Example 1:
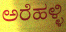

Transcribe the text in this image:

ಅರೆಹಳ್ಳಿ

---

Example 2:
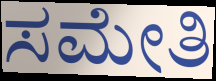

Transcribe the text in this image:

ಸಮೇತಿ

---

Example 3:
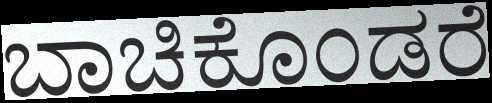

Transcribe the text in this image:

ಬಾಚಿಕೊಂಡರೆ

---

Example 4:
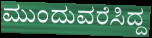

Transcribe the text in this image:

ಮುಂದುವರೆಸಿದ್ದ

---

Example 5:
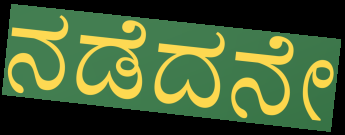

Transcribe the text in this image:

ನಡೆದನೇ